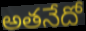
అతనేదో